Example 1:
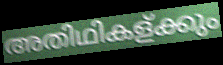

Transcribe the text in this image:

അതിഥികള്ക്കും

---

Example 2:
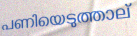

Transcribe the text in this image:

പണിയെടുത്താല്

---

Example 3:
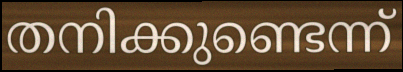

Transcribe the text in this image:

തനിക്കുണ്ടെന്ന്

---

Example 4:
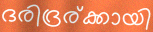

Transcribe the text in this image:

ദരിദ്രര്ക്കായി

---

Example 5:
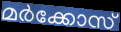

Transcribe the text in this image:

മർക്കോസ്